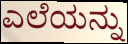
ಎಲೆಯನ್ನು